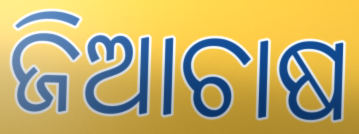
ଜିଆଚାଷ